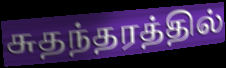
சுதந்தரத்தில்